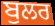
ਬੁਲਰ